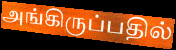
அங்கிருப்பதில்